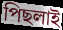
পিছলাই